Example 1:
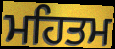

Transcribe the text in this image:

ਮਹਿਤਮ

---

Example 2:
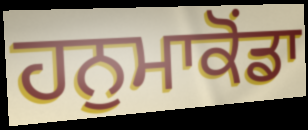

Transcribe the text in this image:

ਹਨੁਮਾਕੋਂਡਾ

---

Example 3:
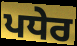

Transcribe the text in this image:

ਪਧੇਰ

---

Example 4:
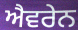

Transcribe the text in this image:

ਐਵਰੇਨ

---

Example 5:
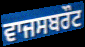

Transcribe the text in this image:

ਵਾਜਸਬਰੌਟ